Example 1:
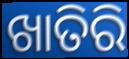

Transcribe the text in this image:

ଖାତିରି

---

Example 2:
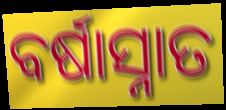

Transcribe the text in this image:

ବର୍ଷାସ୍ନାତ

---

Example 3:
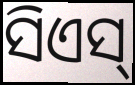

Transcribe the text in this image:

ସିଏସ୍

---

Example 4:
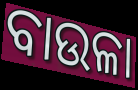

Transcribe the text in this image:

ବାଉଳା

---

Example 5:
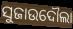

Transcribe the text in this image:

ସୁଜାଉଦୌଲା